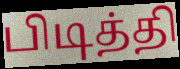
பிடித்தி